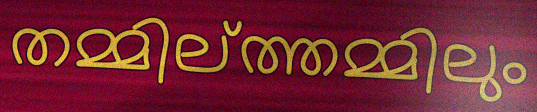
തമ്മില്ത്തമ്മിലും